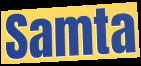
Samta